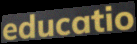
educatio